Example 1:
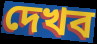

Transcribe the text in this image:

দেখব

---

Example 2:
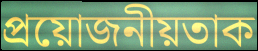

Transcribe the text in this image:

প্ৰয়োজনীয়তাক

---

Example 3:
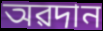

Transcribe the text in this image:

অৱদান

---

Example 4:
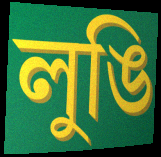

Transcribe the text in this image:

লুঙি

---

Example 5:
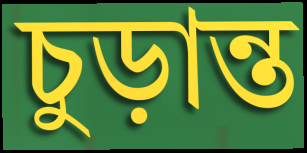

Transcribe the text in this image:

চুড়ান্ত